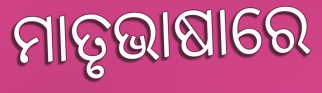
ମାତୃଭାଷାରେ